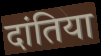
दांतिया